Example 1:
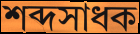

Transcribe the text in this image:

শব্দসাধক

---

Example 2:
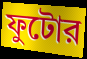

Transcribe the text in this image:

ফুটোর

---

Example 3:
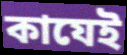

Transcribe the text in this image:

কাযেই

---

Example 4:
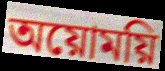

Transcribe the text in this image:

অয়োময়ি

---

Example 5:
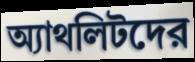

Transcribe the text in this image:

অ্যাথলিটদের